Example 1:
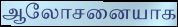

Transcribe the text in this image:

ஆலோசனையாக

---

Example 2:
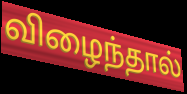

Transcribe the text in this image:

விழைந்தால்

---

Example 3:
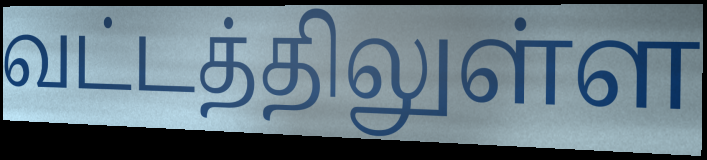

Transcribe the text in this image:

வட்டத்திலுள்ள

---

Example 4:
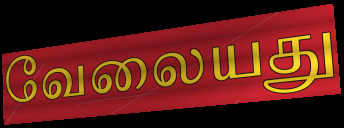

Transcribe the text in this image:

வேலையது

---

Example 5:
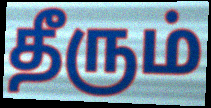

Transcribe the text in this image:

தீரும்